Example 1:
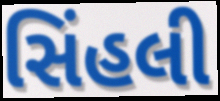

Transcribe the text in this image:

સિંહલી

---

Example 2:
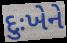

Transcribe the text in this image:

દુઃખેને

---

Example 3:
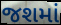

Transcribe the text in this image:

જશમાં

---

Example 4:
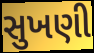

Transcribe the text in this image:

સુખણી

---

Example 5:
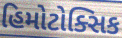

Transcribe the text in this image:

હિમોટોક્સિક